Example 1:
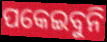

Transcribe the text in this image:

ପକେଇବୁନି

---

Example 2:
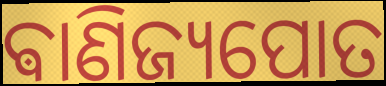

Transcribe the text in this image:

ଵାଣିଜ୍ୟପୋତ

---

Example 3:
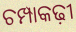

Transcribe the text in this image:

ଚମ୍ପାକଢ଼ୀ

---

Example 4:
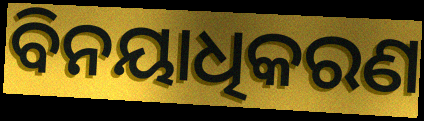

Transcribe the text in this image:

ବିନୟାଧିକରଣ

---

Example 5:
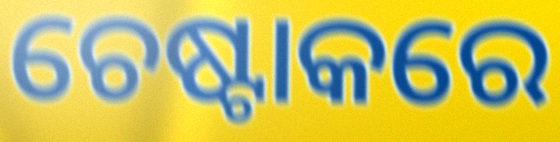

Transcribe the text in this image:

ଚେଷ୍ଟାକରେ